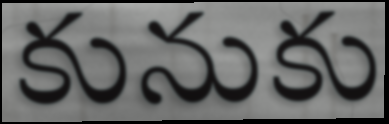
కునుకు